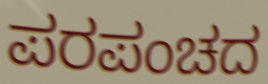
ಪರಪಂಚದ